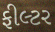
ફીલ્ટર